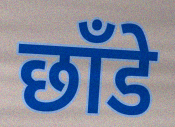
छाँडे